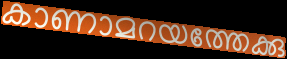
കാണാമറയത്തേക്കു